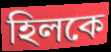
হিলকে